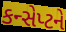
કન્સેપ્ટને